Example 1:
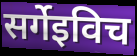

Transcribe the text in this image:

सर्गेइविच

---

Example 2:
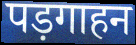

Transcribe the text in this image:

पड़गाहन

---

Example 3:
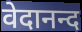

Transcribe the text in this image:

वेदानन्द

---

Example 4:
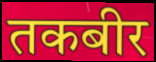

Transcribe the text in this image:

तकबीर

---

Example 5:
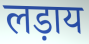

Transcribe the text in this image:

लड़ाय